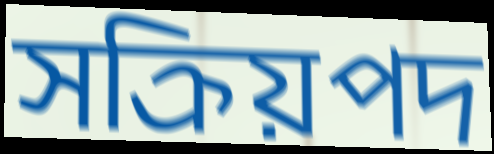
সক্রিয়পদ